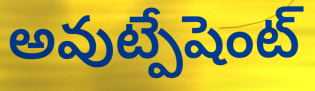
అవుట్పేషెంట్